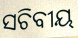
ସଚିବୀୟ